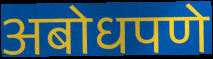
अबोधपणे